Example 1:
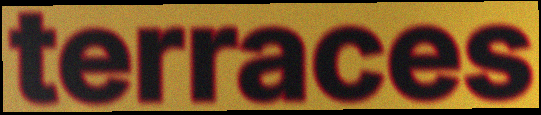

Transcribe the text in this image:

terraces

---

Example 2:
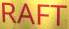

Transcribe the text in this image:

RAFT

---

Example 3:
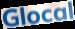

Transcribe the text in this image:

Glocal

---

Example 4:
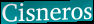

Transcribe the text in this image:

Cisneros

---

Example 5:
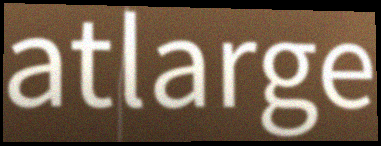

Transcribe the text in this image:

atlarge